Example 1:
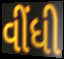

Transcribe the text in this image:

વીંધી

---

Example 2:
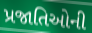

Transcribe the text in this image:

પ્રજાતિઓની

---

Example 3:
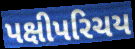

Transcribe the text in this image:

પક્ષીપરિચય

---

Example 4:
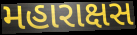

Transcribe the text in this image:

મહારાક્ષસ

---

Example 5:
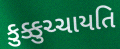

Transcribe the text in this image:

કુક્કુચ્ચાયતિ